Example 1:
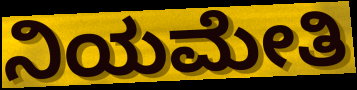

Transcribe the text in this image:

ನಿಯಮೇತಿ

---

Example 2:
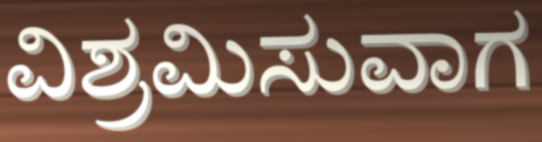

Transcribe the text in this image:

ವಿಶ್ರಮಿಸುವಾಗ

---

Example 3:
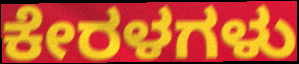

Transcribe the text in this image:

ಕೇರಳಗಳು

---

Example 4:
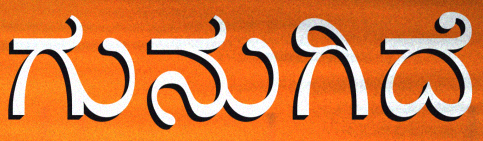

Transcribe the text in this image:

ಗುನುಗಿದೆ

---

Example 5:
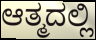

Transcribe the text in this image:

ಆತ್ಮದಲ್ಲಿ